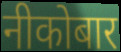
नीकोबार